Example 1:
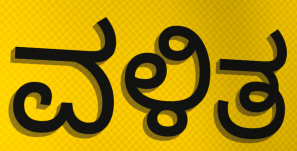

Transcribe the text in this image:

ವಳಿತ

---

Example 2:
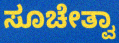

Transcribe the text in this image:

ಸೂಚೇತ್ವಾ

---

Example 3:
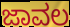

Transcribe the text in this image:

ಜಾವಲ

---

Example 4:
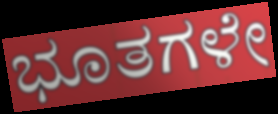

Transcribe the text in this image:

ಭೂತಗಳೇ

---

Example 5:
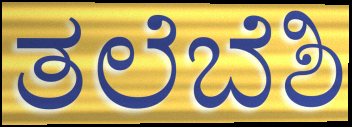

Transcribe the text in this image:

ತಲೆಬೆಶಿ